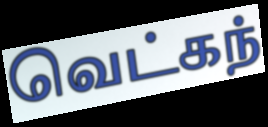
வெட்கந்